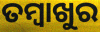
ତମ୍ବାଖୁର